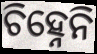
ଚିହ୍ନେନି